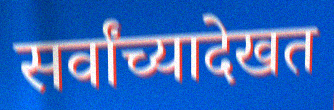
सर्वांच्यादेखत